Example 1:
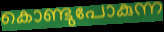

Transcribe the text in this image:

കൊണ്ടുപോകുന്ന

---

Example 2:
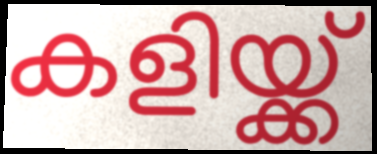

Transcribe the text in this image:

കളിയ്ക്ക്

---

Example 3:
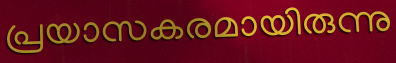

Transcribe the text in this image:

പ്രയാസകരമായിരുന്നു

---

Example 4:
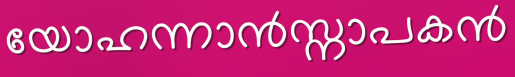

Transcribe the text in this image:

യോഹന്നാൻസ്നാപകൻ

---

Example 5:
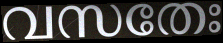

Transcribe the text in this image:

വസതേഃ